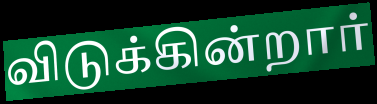
விடுக்கின்றார்